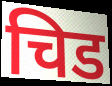
चिड